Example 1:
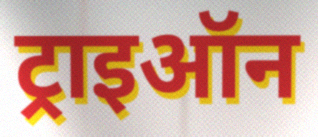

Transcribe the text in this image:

ट्राइऑन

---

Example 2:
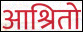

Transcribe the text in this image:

आश्रितो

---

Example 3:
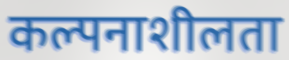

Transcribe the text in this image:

कल्पनाशीलता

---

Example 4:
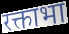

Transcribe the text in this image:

रक्ताभा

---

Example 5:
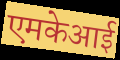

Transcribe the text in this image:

एमकेआई